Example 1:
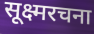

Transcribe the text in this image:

सूक्ष्मरचना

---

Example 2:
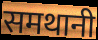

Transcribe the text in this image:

समथानी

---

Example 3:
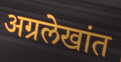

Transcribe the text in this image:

अग्रलेखांत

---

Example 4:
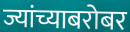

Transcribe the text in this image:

ज्यांच्याबरोबर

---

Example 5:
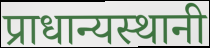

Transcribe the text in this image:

प्राधान्यस्थानी